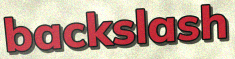
backslash